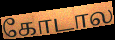
கோடால